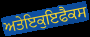
ਅਤੇਇਕੁਇਫੈਕਸ